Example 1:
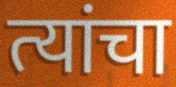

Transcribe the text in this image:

त्‍यांचा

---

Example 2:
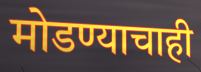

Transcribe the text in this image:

मोडण्याचाही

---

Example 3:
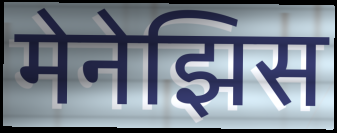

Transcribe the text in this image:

मेनेझिस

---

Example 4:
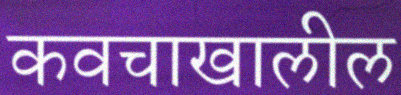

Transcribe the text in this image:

कवचाखालील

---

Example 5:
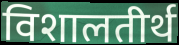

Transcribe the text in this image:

विशालतीर्थ